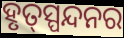
ହୃତ୍‌ସ୍ପନ୍ଦନର